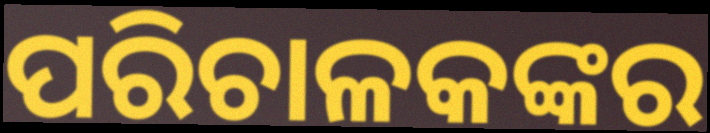
ପରିଚାଳକଙ୍କର